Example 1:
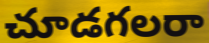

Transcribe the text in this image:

చూడగలరా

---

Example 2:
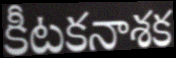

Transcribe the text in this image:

కీటకనాశక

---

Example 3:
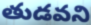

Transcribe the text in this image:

తుడవని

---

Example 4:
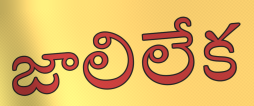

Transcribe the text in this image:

జాలిలేక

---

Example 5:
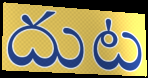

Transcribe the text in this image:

దుట